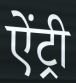
ऐंट्री